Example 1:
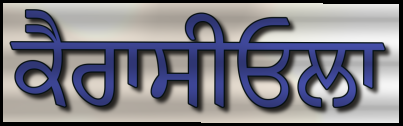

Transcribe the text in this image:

ਕੈਰਾਸੀਓਲਾ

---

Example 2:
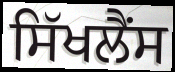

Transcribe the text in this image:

ਸਿੱਖਲੈਂਸ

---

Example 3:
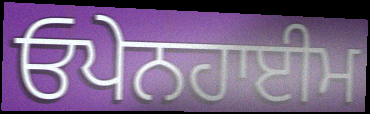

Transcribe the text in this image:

ਓਪੇਨਹਾਈਮ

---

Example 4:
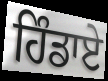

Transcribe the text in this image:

ਹਿੰਡਾਏ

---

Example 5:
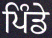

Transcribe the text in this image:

ਪਿੰਡੇ